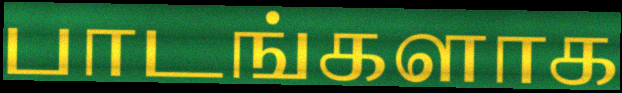
பாடங்களாக